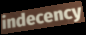
indecency